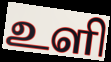
உளி